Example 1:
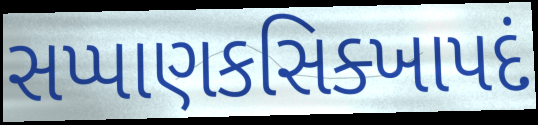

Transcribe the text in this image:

સપ્પાણકસિક્ખાપદં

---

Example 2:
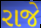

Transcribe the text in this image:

રાજે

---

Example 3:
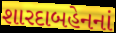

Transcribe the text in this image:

શારદાબહેનનાં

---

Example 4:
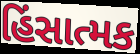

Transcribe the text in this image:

હિંસાત્મક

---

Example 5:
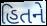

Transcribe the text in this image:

હિતને